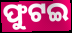
ଫୁଟଇ